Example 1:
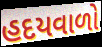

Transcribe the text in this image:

હદયવાળો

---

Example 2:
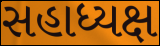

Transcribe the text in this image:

સહાધ્યક્ષ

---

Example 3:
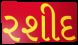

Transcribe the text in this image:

રશીદ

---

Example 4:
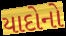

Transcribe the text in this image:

યાદોનો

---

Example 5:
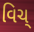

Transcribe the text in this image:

વિચ્